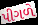
પીગળે